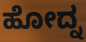
ಹೋದ್ನ